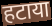
हटाया